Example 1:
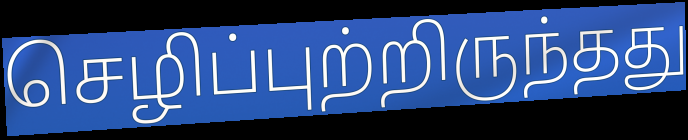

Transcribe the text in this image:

செழிப்புற்றிருந்தது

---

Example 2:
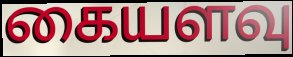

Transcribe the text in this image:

கையளவு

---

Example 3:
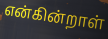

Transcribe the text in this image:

என்கின்றாள்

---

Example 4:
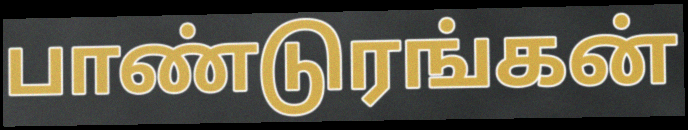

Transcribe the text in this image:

பாண்டுரங்கன்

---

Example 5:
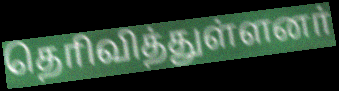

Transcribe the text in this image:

தெரிவித்துள்ளனர்